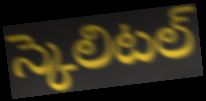
స్కెలిటల్